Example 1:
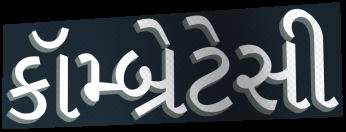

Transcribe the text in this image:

કૉમ્બ્રેટેસી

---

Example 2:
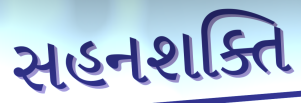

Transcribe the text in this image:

સહનશક્તિ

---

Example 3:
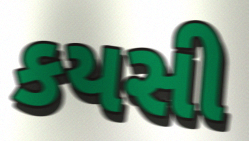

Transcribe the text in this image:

કયસી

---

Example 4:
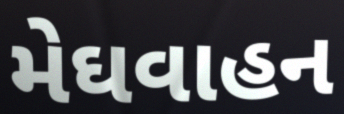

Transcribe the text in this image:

મેઘવાહન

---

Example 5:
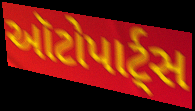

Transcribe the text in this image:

ઑટોપાર્ટ્સ